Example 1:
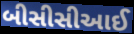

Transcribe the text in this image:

બીસીસીઆઈ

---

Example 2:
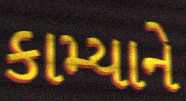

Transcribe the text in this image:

કામ્યાને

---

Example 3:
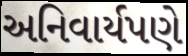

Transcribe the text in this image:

અનિવાર્યપણે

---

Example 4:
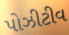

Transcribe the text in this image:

પોઝીટીવ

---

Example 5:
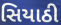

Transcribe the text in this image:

સિયાઠી